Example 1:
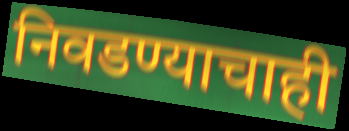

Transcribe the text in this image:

निवडण्याचाही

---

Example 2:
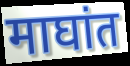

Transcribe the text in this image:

माघांत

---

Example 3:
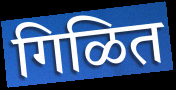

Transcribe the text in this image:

गिळित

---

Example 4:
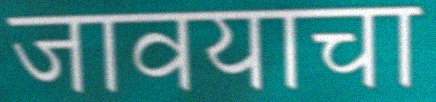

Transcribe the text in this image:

जावयाचा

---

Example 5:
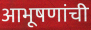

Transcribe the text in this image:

आभूषणांची